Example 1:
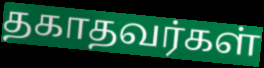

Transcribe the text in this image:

தகாதவர்கள்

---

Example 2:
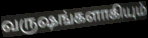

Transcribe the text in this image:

வருஷங்களாகியும்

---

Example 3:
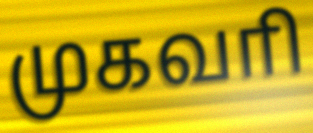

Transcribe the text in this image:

முகவரி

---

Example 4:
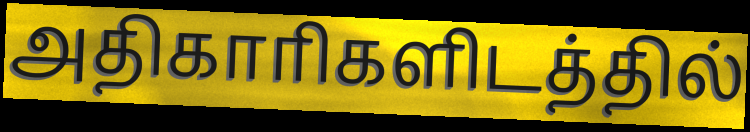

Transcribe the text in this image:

அதிகாரிகளிடத்தில்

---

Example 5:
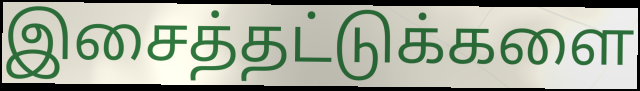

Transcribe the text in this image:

இசைத்தட்டுக்களை